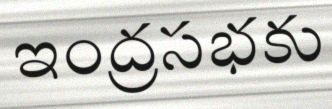
ఇంద్రసభకు